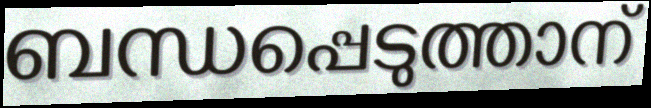
ബന്ധപ്പെടുത്താന്